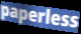
paperless